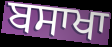
ਬਸਾਖਾ